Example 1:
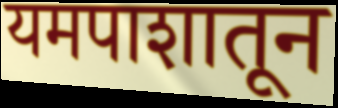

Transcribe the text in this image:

यमपाशातून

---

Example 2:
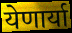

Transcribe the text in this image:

येणार्या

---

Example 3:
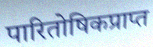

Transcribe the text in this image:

पारितोषिकप्राप्त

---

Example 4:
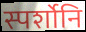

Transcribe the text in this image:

स्पर्शोनि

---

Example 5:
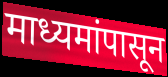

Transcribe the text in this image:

माध्यमांपासून